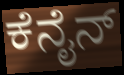
ಕೆನೈನ್